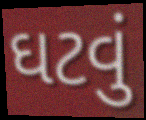
ઘટવું